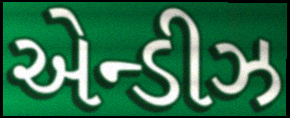
એન્ડીઝ